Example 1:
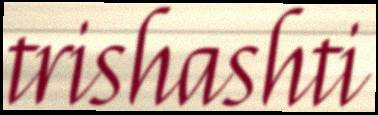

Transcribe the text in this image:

trishashti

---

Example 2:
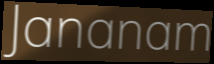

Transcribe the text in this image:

Jananam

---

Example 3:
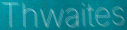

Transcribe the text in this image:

Thwaites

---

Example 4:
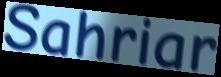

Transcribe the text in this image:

Sahriar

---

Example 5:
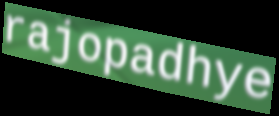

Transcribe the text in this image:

rajopadhye